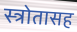
स्त्रोतासह